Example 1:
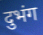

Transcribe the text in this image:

दुभंग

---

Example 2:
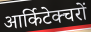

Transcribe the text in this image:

आर्किटेक्चरों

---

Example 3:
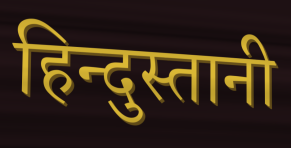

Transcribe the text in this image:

हिन्दुस्तानी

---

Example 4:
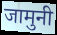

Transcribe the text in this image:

जामुनी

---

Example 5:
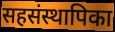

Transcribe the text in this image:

सहसंस्थापिका